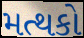
મત્થકો